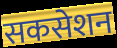
सकसेशन